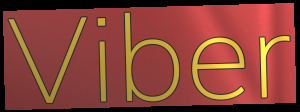
Viber